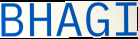
BHAGI